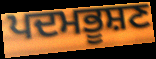
ਪਦਮਭੂਸ਼ਣ